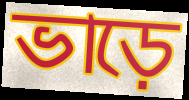
ভাড়ে